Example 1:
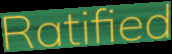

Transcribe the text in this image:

Ratified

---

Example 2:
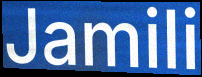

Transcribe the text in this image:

Jamili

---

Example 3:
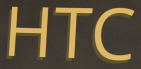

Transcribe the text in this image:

HTC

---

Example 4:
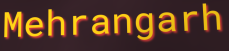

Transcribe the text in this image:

Mehrangarh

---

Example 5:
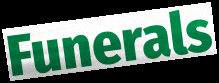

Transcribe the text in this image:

Funerals